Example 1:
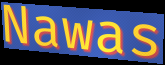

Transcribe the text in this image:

Nawas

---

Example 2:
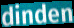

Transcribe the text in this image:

dinden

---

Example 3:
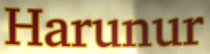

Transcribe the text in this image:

Harunur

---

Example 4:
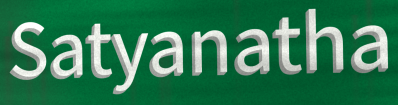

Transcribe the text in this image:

Satyanatha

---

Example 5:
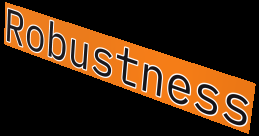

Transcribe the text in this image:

Robustness